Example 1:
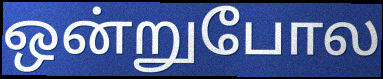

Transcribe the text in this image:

ஒன்றுபோல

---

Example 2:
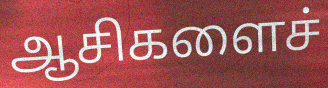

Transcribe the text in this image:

ஆசிகளைச்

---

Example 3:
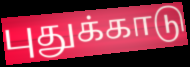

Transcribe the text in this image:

புதுக்காடு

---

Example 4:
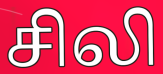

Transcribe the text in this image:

சிலி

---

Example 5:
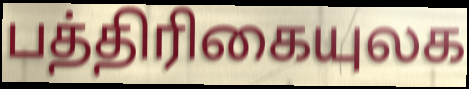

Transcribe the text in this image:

பத்திரிகையுலக